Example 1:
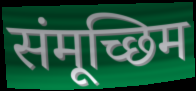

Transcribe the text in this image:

संमूच्छिम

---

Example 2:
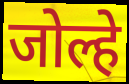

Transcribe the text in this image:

जोल्हे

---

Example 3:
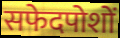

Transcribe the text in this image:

सफेदपोशों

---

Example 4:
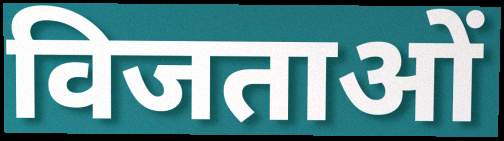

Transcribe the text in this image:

विजताओं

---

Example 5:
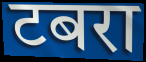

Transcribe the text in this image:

टबरा